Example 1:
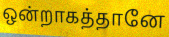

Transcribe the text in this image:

ஒன்றாகத்தானே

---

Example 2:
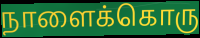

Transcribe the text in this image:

நாளைக்கொரு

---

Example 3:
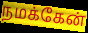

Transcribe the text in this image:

நமக்கேன்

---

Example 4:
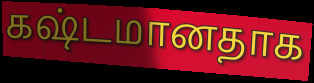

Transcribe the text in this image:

கஷ்டமானதாக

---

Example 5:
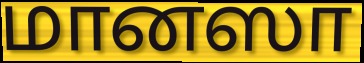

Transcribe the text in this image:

மானஸா